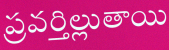
ప్రవర్తిల్లుతాయి